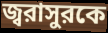
জ্বরাসুরকে